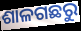
ଶାଳଗଛରୁ